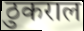
ठुकराल